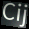
Cij